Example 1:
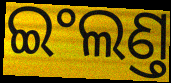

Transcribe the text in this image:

ଇଂଲଣ୍ତ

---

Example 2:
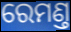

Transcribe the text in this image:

ରେମଣ୍ତ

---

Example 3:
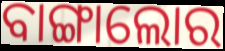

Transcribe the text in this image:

ବାଙ୍ଗାଲୋର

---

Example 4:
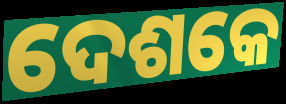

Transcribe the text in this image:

ଦେଶକେ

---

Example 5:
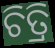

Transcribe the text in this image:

ଚିତ୍ରି